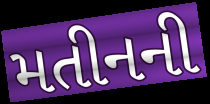
મતીનની